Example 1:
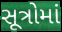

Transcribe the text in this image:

સૂત્રોમાં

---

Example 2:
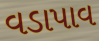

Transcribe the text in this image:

વડાપાવ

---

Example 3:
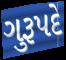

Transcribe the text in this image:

ગુરૂપદે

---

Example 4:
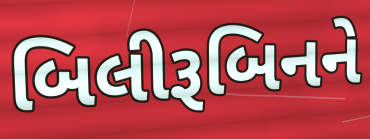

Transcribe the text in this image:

બિલીરૂબિનને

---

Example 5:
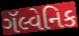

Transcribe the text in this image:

ગૅલ્વેનિક